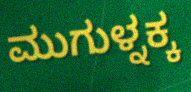
ಮುಗುಳ್ನಕ್ಕ